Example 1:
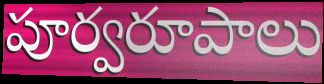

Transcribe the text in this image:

పూర్వరూపాలు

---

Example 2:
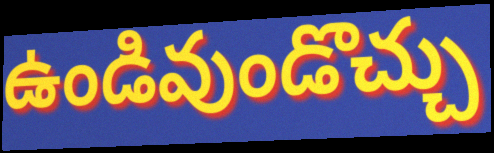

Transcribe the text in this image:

ఉండివుండొచ్చు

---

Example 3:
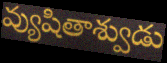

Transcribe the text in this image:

వ్యుషితాశ్వుడు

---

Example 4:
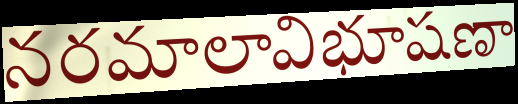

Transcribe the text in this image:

నరమాలావిభూషణా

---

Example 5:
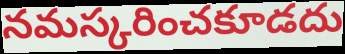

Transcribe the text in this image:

నమస్కరించకూడదు